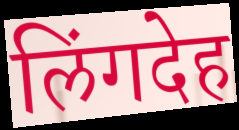
लिंगदेह